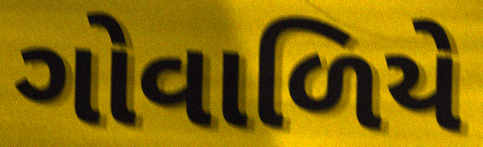
ગોવાળિયે